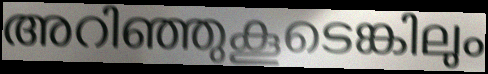
അറിഞ്ഞുകൂടെങ്കിലും